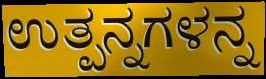
ಉತ್ಪನ್ನಗಳನ್ನ